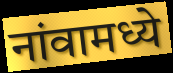
नांवामध्ये